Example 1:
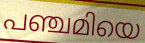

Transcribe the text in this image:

പഞ്ചമിയെ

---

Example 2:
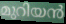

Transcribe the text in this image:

മുറിയൻ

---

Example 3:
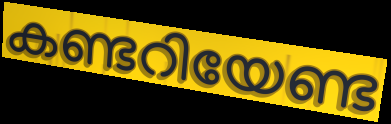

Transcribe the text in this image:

കണ്ടറിയേണ്ട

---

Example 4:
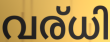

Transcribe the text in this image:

വര്ധി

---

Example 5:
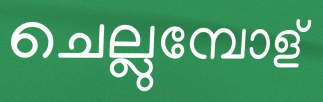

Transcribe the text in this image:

ചെല്ലുമ്പോള്